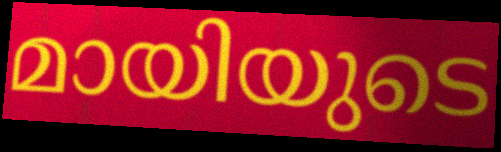
മായിയുടെ